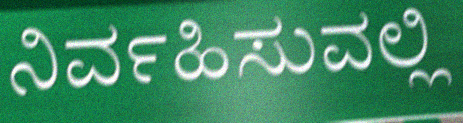
ನಿರ್ವಹಿಸುವಲ್ಲಿ